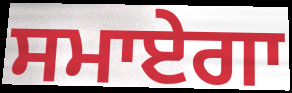
ਸਮਾਏਗਾ